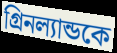
গ্রিনল্যান্ডকে